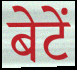
बेटें